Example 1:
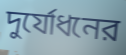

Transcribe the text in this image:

দুর্যোধনের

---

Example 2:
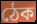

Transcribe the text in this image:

ঠেক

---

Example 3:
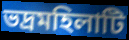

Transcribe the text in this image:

ভদ্রমহিলাটি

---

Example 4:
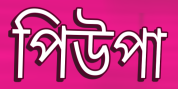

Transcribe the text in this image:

পিউপা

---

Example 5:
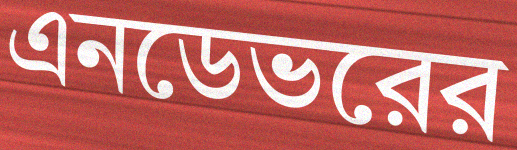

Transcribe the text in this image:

এনডেভরের